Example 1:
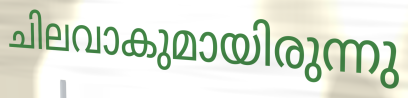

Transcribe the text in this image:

ചിലവാകുമായിരുന്നു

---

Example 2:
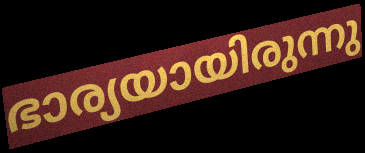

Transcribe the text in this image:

ഭാര്യയായിരുന്നു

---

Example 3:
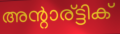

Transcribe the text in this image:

അന്റാര്ട്ടിക്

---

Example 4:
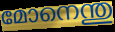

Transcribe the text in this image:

മോനെന്തു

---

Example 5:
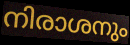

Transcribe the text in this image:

നിരാശനും